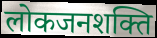
लोकजनशक्ति